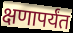
क्षणापर्यंत